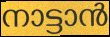
നാട്ടാൻ